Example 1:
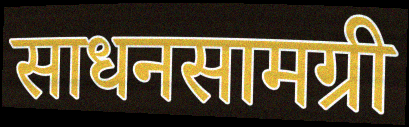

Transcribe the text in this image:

साधनसामग्री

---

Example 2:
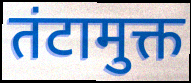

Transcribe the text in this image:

तंटामुक्त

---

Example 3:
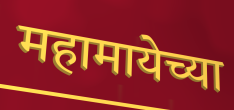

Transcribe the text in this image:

महामायेच्या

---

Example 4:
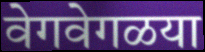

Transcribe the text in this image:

वेगवेगळया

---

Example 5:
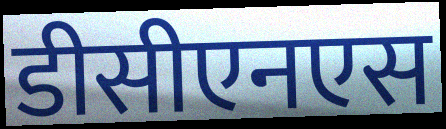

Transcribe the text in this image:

डीसीएनएस